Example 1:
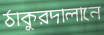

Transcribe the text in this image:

ঠাকুরদালানে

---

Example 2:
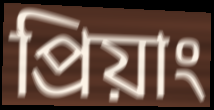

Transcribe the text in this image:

প্রিয়াং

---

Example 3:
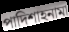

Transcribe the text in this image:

পাদিশাহনামা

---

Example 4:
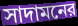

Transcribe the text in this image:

সাদামনের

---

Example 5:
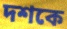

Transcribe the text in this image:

দশকে